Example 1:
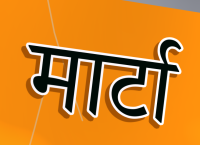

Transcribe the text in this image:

मार्टा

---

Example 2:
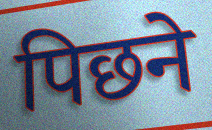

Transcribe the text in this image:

पिछने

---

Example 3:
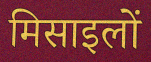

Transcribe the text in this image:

मिसाइलों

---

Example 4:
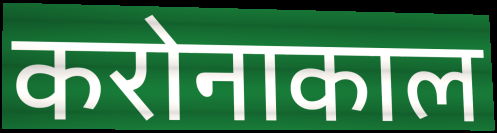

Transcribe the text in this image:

करोनाकाल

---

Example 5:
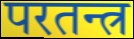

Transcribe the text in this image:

परतन्त्र